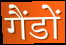
गैंडों